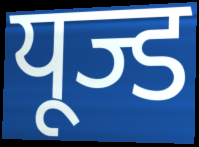
यूज्ड